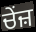
ਚੇਂਜ਼